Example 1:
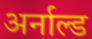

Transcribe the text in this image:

अर्नाल्ड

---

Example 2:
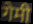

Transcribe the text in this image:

गेमी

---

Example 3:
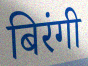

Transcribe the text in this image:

बिरंगी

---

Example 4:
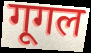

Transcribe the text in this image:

गूगल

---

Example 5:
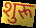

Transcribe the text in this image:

शुरू